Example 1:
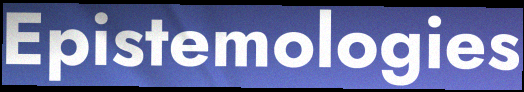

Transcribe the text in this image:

Epistemologies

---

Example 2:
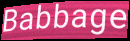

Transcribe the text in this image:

Babbage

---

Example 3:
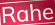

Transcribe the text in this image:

Rahe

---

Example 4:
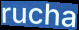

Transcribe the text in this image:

rucha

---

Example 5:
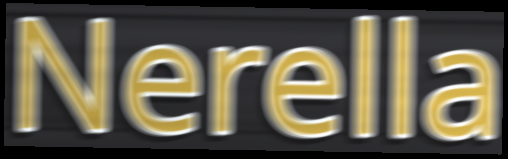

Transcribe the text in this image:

Nerella